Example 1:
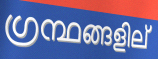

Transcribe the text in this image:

ഗ്രന്ഥങ്ങളില്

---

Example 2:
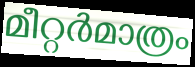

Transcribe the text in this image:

മീറ്റർമാത്രം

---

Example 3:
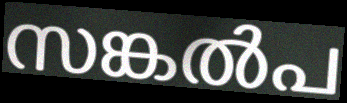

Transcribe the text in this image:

സങ്കൽപ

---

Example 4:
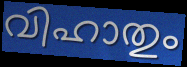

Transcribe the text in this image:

വിഹാതും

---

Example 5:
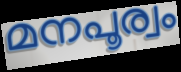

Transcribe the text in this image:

മനപൂര്വം